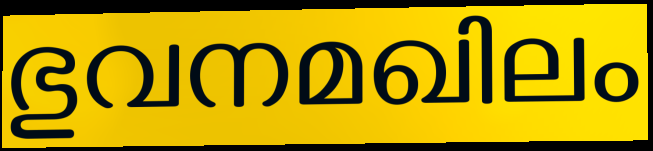
ഭുവനമഖിലം